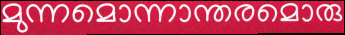
മുന്നമൊന്നാന്തരമൊരു